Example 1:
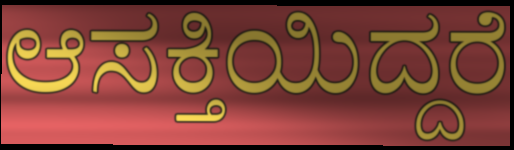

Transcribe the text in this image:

ಆಸಕ್ತಿಯಿದ್ದರೆ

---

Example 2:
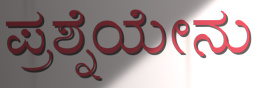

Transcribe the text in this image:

ಪ್ರಶ್ನೆಯೇನು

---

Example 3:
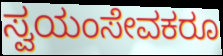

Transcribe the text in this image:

ಸ್ವಯಂಸೇವಕರೂ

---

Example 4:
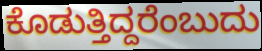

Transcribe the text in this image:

ಕೊಡುತ್ತಿದ್ದರೆಂಬುದು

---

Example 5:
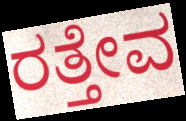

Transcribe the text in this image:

ರತ್ತೇವ